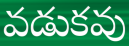
వడుకవు